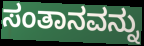
ಸಂತಾನವನ್ನು